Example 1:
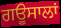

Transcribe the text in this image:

ਗਊਸਾਲਾਂ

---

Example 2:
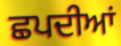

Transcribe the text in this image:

ਛਪਦੀਆਂ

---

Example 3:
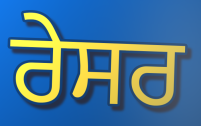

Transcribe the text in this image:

ਰੇਸਰ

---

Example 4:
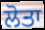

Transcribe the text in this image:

ਲੋਤਾ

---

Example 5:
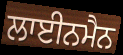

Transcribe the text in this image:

ਲਾਈਨਮੈਨ